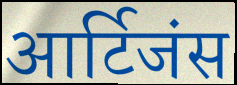
आर्टिजंस